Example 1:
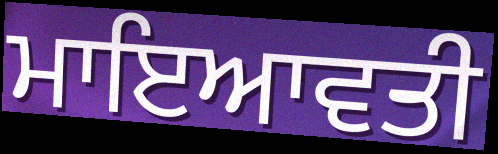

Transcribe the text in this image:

ਮਾਇਆਵਤੀ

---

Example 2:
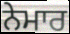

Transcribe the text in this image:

ਨੇਮਾਰ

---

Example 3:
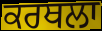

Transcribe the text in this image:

ਕਰਥਲਾ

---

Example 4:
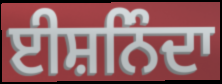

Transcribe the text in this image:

ਈਸ਼ਨਿੰਦਾ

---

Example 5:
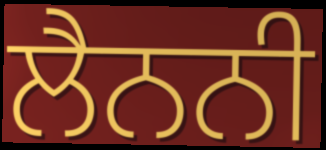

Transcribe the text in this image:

ਲੈਨਨੀ